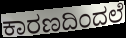
ಕಾರಣದಿಂದಲೆ